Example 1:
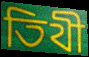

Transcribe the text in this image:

তিথী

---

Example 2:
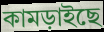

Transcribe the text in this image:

কামড়াইছে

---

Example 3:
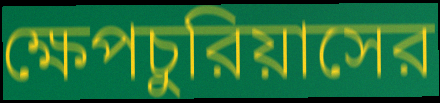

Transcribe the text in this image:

ক্ষেপচুরিয়াসের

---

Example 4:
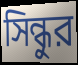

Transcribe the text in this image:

সিন্ধুর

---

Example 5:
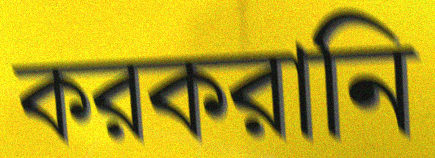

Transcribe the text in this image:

করকরানি